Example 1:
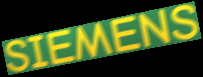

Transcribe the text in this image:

SIEMENS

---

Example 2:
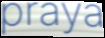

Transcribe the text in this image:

praya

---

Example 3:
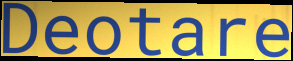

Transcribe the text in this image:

Deotare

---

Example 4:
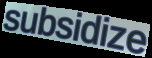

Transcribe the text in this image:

subsidize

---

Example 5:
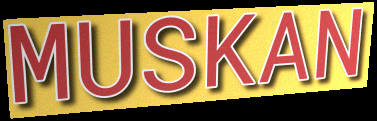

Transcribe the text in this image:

MUSKAN